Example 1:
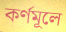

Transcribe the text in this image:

কর্ণমূলে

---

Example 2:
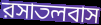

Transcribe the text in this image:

রসাতলবাস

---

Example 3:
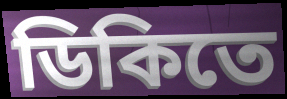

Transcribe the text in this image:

ডিকিতে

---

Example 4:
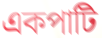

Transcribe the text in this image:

একপাটি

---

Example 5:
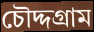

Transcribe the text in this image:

চৌদ্দগ্রাম